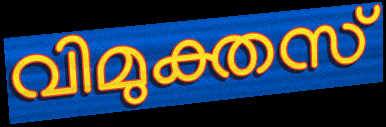
വിമുക്തസ്